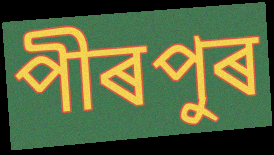
পীৰপুৰ